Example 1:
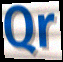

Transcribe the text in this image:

Qr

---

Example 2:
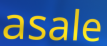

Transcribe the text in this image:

asale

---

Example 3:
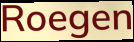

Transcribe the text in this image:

Roegen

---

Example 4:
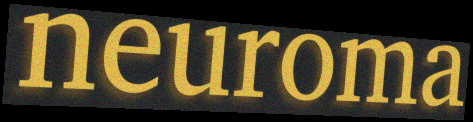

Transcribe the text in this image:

neuroma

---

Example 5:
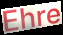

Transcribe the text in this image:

Ehre